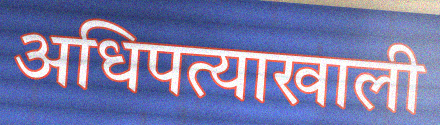
अधिपत्याखाली